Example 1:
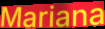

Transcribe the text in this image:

Mariana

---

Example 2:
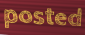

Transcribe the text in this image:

posted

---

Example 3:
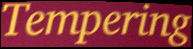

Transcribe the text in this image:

Tempering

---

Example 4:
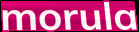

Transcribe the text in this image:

morula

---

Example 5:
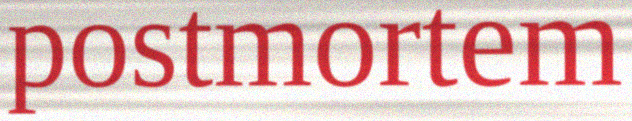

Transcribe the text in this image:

postmortem